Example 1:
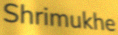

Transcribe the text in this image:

Shrimukhe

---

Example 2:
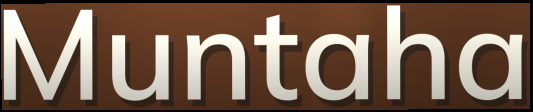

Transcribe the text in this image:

Muntaha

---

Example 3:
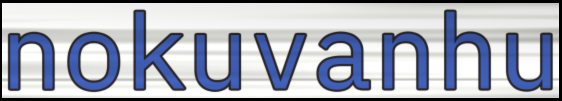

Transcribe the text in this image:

nokuvanhu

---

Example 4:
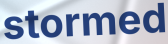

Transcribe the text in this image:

stormed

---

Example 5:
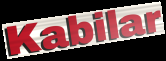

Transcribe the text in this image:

Kabilar